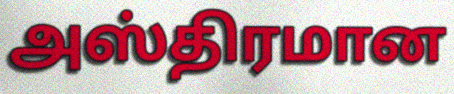
அஸ்திரமான